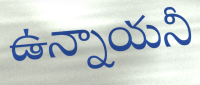
ఉన్నాయనీ